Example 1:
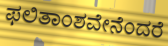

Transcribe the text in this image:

ಫಲಿತಾಂಶವೇನೆಂದರೆ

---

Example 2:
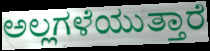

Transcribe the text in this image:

ಅಲ್ಲಗಳೆಯುತ್ತಾರೆ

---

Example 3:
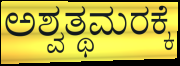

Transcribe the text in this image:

ಅಶ್ವತ್ಥಮರಕ್ಕೆ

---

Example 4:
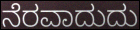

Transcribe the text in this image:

ನೆರವಾದುದು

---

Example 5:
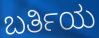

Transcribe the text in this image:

ಬರ್ತಿಯ